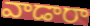
వాడారా